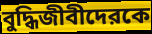
বুদ্ধিজীবীদেরকে